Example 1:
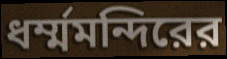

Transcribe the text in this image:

ধর্ম্মমন্দিরের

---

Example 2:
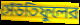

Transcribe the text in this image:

সেঁউতিফুলের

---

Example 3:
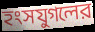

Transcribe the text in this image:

হংসযুগলের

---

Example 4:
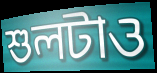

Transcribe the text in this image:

শুলটাও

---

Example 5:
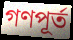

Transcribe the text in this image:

গণপূর্ত